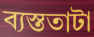
ব্যস্ততাটা